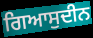
ਗਿਆਸੁਦੀਨ